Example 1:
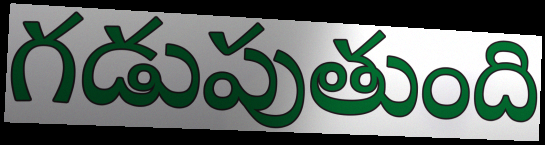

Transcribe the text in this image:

గడుపుతుంది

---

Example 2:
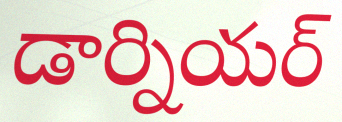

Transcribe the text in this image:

డార్నియర్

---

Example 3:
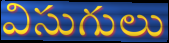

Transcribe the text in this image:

విసుగులు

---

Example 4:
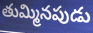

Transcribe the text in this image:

తుమ్మినపుడు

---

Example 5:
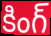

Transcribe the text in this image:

కింగ్